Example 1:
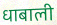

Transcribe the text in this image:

धाबाली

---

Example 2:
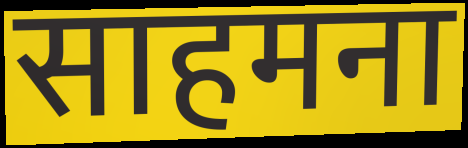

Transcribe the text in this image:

साहमना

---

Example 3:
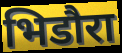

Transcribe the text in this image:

भिडौरा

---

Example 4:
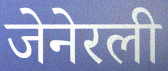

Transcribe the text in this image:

जेनेरली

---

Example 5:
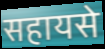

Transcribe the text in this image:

सहायसे